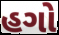
હગો